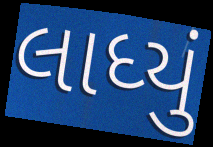
લાધ્યું